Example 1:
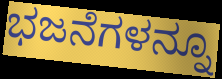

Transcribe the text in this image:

ಭಜನೆಗಳನ್ನೂ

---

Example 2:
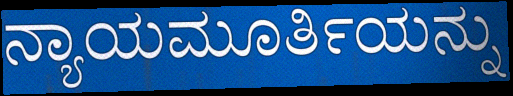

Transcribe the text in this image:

ನ್ಯಾಯಮೂರ್ತಿಯನ್ನು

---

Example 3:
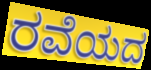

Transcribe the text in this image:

ರವೆಯದ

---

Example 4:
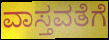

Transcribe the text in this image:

ವಾಸ್ತವತೆಗೆ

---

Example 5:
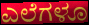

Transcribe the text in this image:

ಎಲೆಗಳೂ